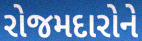
રોજમદારોને